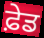
ਫ਼ੇਡ